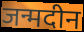
जन्मदीन